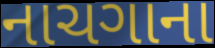
નાચગાના